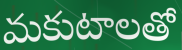
మకుటాలతో